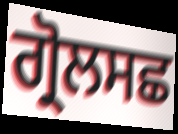
ਗ੍ਰੋਲਸਛ